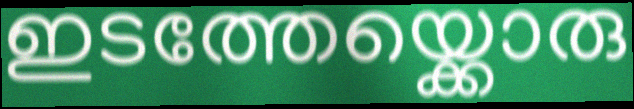
ഇടത്തേയ്ക്കൊരു